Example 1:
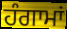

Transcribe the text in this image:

ਹੰਗਾਮਾਂ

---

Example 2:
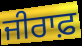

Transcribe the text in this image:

ਜੀਰਾਫ਼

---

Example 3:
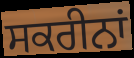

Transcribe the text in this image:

ਸਕਰੀਨਾਂ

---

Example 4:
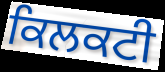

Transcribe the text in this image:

ਕਿਲਕਟੀ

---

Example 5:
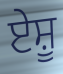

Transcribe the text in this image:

ਏਸ਼ੂ